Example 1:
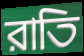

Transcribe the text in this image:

রাতি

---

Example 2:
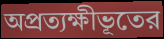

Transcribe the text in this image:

অপ্রত্যক্ষীভূতের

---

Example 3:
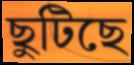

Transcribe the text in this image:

ছুটিছে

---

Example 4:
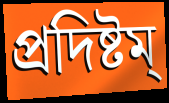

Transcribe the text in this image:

প্রদিষ্টম্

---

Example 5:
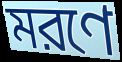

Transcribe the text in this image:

মরণে